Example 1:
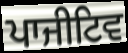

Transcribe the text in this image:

ਪਾਜੀਟਿਵ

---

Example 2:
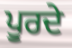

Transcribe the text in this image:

ਪੂਰਦੇ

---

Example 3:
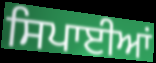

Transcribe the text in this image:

ਸਿਪਾਈਆਂ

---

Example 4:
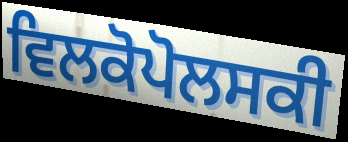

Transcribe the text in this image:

ਵਿਲਕੋਪੋਲਸਕੀ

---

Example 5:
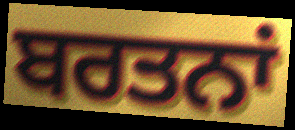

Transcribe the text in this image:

ਬਰਤਨਾਂ